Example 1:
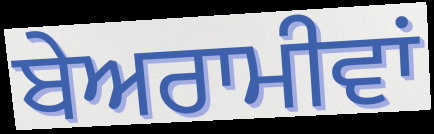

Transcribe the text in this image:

ਬੇਅਰਾਮੀਵਾਂ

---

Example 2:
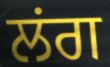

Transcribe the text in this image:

ਲਂਗ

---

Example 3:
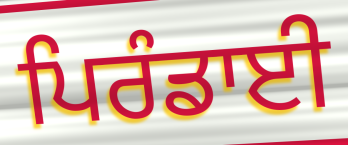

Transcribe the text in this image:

ਪਿਰੰਡਾਈ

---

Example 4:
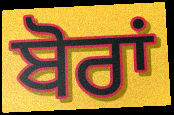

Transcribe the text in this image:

ਬੋਰਾਂ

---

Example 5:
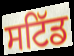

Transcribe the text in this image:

ਸਟਿੱਡ